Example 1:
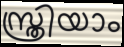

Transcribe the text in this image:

സ്ത്രിയാം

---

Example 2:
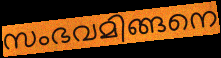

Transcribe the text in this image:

സംഭവമിങ്ങനെ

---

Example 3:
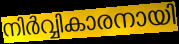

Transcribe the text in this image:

നിർവ്വികാരനായി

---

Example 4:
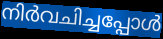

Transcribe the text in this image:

നിർവചിച്ചപ്പോൾ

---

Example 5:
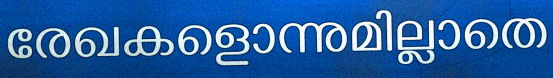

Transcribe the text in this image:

രേഖകളൊന്നുമില്ലാതെ